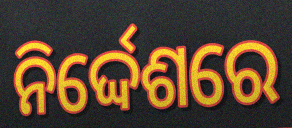
ନିର୍ଦ୍ଦେଶରେ